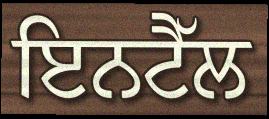
ਇਨਟੈੱਲ